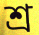
শ্র